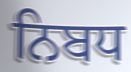
ਨਿਬਧ